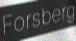
Forsberg